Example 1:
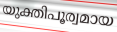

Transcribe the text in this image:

യുക്തിപൂര്വമായ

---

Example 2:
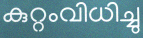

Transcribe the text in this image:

കുറ്റംവിധിച്ചു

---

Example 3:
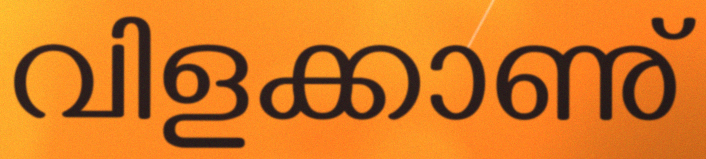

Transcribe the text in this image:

വിളക്കാണു്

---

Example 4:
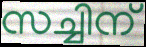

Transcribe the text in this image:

സച്ചിന്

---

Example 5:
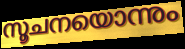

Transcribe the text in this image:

സൂചനയൊന്നും